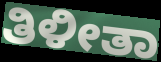
ತಿಳೀತಾ